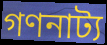
গণনাট্য